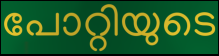
പോറ്റിയുടെ